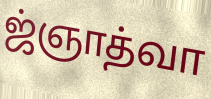
ஜ்ஞாத்வா